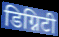
डिग्निटी